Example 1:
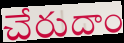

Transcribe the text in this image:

చేరుదాం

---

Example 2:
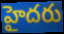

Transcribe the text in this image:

హైదరు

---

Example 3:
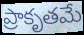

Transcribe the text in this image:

ప్రాకృతమే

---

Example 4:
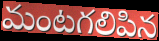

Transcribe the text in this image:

మంటగలిపిన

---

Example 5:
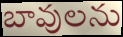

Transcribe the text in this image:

బావులను